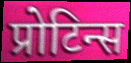
प्रोटिन्स